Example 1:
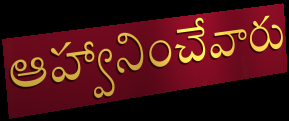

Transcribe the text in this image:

ఆహ్వానించేవారు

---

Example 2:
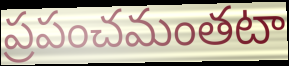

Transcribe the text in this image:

ప్రపంచమంతటా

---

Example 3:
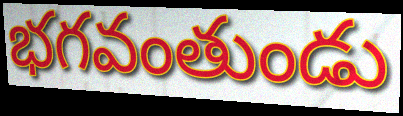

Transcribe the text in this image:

భగవంతుండు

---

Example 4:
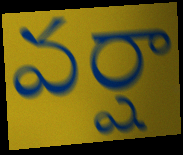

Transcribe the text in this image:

వర్షా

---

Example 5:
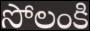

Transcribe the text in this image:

సోలంకి